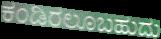
ಕಂಡಿರಲೂಬಹುದು